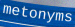
metonyms